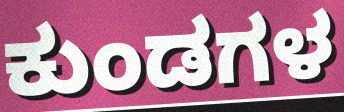
ಕುಂಡಗಳ